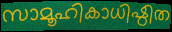
സാമൂഹികാധിഷ്ഠിത